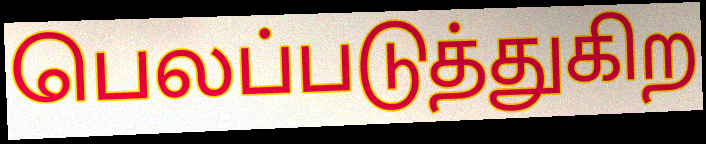
பெலப்படுத்துகிற